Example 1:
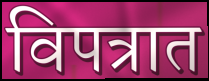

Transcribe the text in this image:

विपत्रात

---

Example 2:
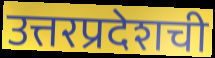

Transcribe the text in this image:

उत्तरप्रदेशची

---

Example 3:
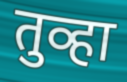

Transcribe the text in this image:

तुव्हा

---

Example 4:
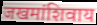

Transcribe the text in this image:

जखमांशिवाय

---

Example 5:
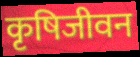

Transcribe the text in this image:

कृषिजीवन